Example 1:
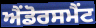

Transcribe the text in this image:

ਐਂਡੋਰਸਮੈਂਟ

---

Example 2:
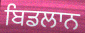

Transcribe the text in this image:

ਬਿਡਲਾਨ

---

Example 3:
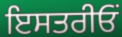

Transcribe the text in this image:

ਇਸਤਰੀਓਂ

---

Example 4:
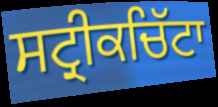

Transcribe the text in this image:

ਸਟ੍ਰੀਕਚਿੱਟਾ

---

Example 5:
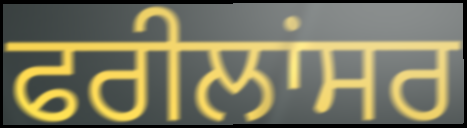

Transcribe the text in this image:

ਫਰੀਲਾਂਸਰ